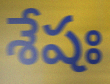
శేషః